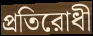
প্রতিরোধী